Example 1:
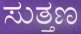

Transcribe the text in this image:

ಸುತ್ತಣ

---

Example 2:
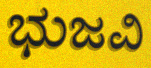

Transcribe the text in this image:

ಭುಜವಿ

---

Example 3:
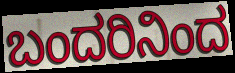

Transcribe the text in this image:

ಬಂದರಿನಿಂದ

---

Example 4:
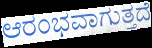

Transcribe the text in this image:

ಆರಂಭವಾಗುತ್ತದೆ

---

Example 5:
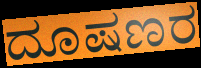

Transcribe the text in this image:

ದೂಷಣರ